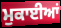
ਮੁਕਾਈਆਂ